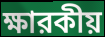
ক্ষারকীয়